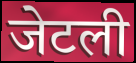
जेटली